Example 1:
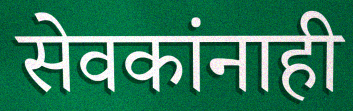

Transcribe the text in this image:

सेवकांनाही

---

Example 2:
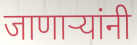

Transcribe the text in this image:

जाणाऱ्यांनी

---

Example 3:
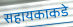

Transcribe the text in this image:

सहायकाकडे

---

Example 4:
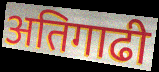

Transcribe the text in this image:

अतिगाढी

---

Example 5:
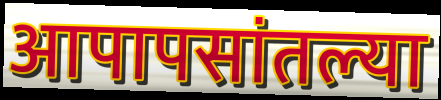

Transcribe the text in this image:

आपापसांतल्या